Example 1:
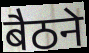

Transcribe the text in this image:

बैठने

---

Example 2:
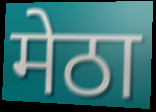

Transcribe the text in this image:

मेठा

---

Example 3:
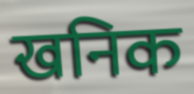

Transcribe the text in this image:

खनिक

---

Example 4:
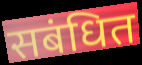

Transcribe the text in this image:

सबंधित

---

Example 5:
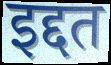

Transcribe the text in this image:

इद्दत